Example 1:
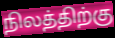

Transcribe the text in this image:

நிலத்திற்கு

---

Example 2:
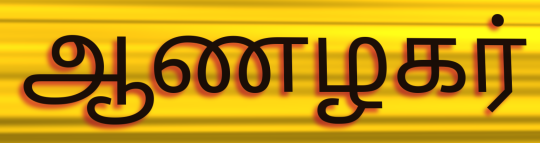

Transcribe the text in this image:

ஆணழகர்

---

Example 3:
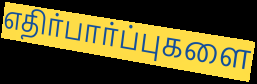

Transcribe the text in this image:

எதிர்பார்ப்புகளை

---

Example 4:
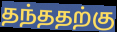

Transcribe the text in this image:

தந்ததற்கு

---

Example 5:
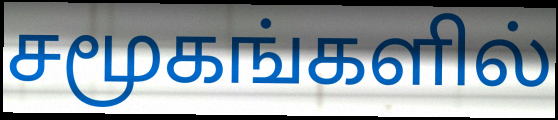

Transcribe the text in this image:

சமூகங்களில்